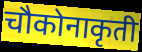
चौकोनाकृती